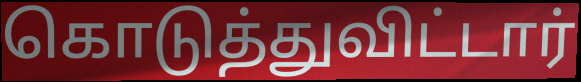
கொடுத்துவிட்டார்